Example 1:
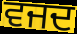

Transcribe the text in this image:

ਵਜਦ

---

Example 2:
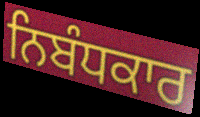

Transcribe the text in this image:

ਨਿਬੰਧਕਾਰ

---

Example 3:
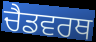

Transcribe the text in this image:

ਚੈਡਵਰਥ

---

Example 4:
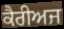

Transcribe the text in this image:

ਕੈਰੀਅਜ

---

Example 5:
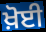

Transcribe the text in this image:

ਖ਼ੋਈ